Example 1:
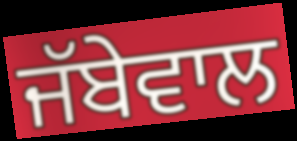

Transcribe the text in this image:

ਜੱਬੇਵਾਲ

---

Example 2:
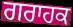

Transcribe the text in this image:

ਗਰਾਹਕ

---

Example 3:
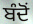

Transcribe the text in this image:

ਬੰਦੋਂ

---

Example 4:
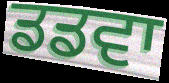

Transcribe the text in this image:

ਡਡਵਾ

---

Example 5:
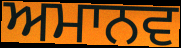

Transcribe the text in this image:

ਅਮਾਨਵ